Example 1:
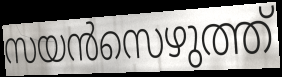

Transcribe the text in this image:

സയൻസെഴുത്ത്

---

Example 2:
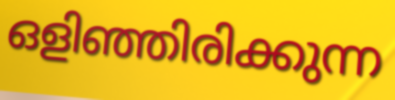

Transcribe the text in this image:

ഒളിഞ്ഞിരിക്കുന്ന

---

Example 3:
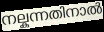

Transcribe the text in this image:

നല്കുന്നതിനാൽ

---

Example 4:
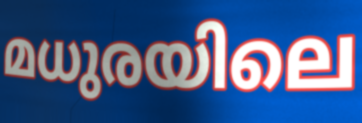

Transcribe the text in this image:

മധുരയിലെ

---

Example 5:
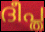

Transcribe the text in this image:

ദീപ്ത